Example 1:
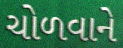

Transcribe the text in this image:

ચોળવાને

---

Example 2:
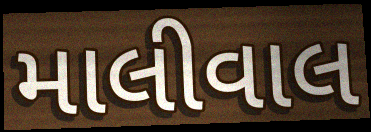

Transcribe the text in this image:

માલીવાલ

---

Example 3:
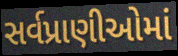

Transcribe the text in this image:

સર્વપ્રાણીઓમાં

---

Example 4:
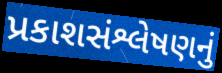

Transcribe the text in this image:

પ્રકાશસંશ્લેષણનું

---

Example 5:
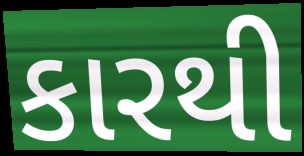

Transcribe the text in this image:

કારથી